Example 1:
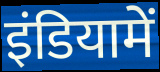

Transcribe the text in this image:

इंडियामें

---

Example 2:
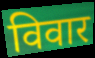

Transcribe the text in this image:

विवार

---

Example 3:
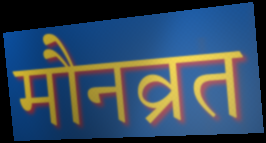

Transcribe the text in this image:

मौनव्रत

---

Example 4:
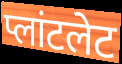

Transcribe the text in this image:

प्लांटलेट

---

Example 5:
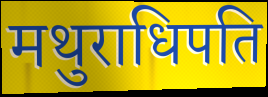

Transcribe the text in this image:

मथुराधिपति